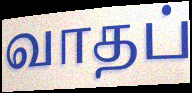
வாதப்